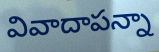
వివాదాపన్నా